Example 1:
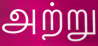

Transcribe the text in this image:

அற்று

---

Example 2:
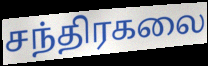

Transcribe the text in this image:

சந்திரகலை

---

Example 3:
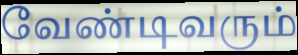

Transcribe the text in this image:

வேண்டிவரும்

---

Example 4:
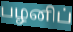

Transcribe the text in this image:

பழனிப்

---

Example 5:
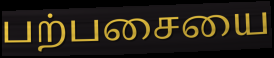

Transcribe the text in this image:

பற்பசையை